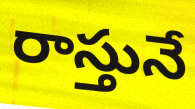
రాస్తునే